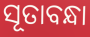
ସୂତାବନ୍ଧା